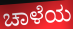
ಚಾಳೆಯ